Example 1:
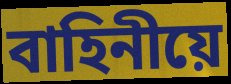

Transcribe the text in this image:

বাহিনীয়ে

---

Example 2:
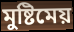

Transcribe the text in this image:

মুষ্টিমেয়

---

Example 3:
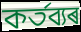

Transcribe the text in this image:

কৰ্তব্যৰ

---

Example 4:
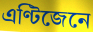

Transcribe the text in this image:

এণ্টিজেনে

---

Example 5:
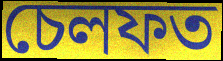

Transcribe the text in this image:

চেলফত